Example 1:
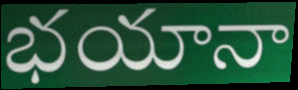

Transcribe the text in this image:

భయానా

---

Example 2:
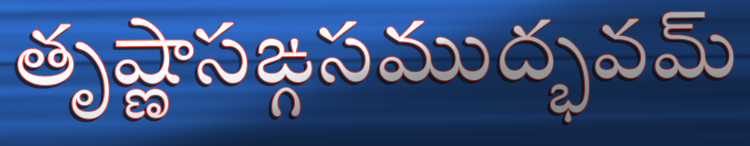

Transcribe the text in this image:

తృష్ణాసఙ్గసముద్భవమ్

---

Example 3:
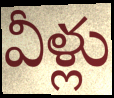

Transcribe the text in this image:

వీళ్లు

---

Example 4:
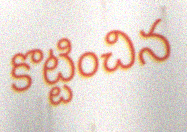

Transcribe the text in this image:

కొట్టించిన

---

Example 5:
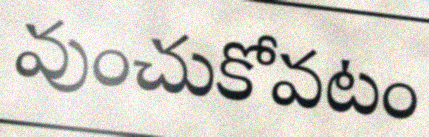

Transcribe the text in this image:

వుంచుకోవటం